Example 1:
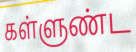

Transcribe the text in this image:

கள்ளுண்ட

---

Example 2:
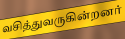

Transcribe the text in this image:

வசித்துவருகின்றனர்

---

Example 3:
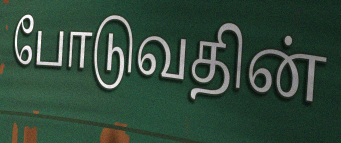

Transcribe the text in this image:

போடுவதின்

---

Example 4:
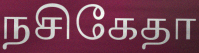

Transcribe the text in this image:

நசிகேதா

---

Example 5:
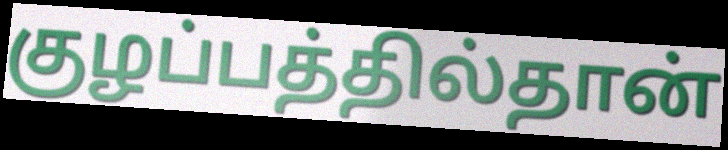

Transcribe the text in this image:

குழப்பத்தில்தான்